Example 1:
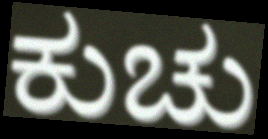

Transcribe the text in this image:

ಕುಚು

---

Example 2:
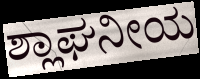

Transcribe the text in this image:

ಶ್ಲಾಘನೀಯ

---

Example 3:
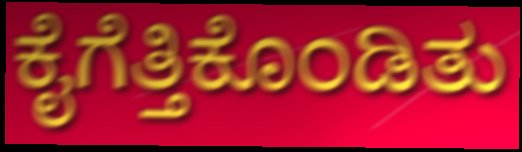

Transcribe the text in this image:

ಕೈಗೆತ್ತಿಕೊಂಡಿತು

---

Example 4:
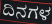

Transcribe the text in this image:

ದಿನಗಳ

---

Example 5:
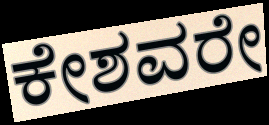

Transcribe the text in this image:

ಕೇಶವರೇ